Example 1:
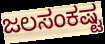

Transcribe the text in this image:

ಜಲಸಂಕಷ್ಟ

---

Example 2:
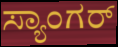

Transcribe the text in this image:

ಸ್ಯಾಂಗರ್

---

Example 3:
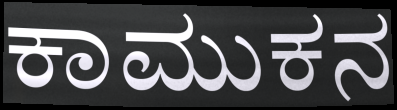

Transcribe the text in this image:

ಕಾಮುಕನ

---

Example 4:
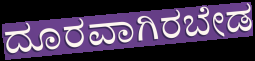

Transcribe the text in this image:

ದೂರವಾಗಿರಬೇಡ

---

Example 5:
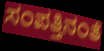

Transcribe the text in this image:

ಸಂಪತ್ತಿನಂತೆ